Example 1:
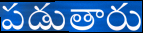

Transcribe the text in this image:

పడుతారు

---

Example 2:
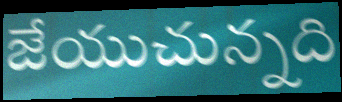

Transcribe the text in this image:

జేయుచున్నది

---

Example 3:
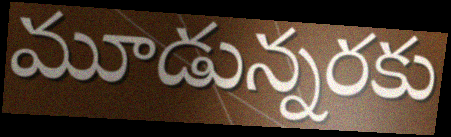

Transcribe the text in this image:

మూడున్నరకు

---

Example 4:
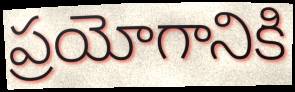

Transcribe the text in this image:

ప్రయోగానికి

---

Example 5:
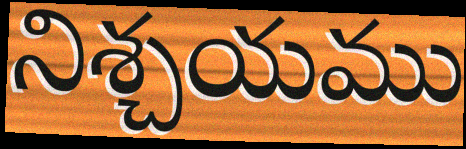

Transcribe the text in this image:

నిశ్చయము